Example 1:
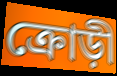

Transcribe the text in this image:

ক্রোড়ী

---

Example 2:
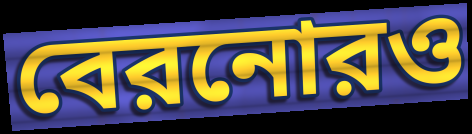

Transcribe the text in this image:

বেরনোরও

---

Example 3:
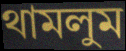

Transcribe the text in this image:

থামলুম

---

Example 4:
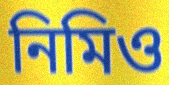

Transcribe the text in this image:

নিমিও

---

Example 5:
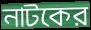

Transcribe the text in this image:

নাটকের